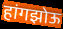
हांगझोऊ